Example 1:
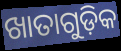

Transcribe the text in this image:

ଖାତାଗୁଡ଼ିକ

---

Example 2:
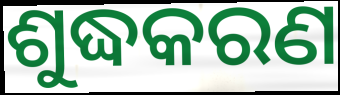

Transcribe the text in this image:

ଶୁଦ୍ଧକରଣ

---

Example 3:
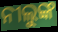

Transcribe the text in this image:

ନୀଲୁଙ୍କ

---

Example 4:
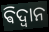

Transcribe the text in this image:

ଵିଦ୍ଵାନ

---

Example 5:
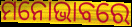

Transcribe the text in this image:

ମନୋଭାବରେ